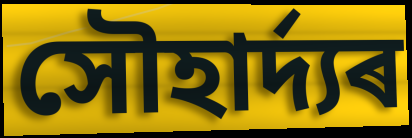
সৌহাৰ্দ্যৰ